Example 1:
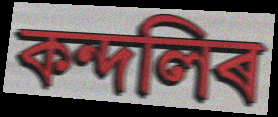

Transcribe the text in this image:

কন্দলিৰ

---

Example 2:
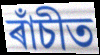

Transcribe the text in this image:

ৰাঁচীত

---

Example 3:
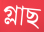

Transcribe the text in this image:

গ্লাছ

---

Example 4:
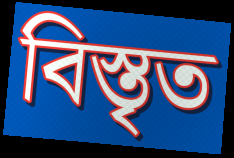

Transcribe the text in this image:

বিস্তৃত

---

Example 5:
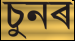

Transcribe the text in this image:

চুনৰ